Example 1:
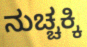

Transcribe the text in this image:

ನುಚ್ಚಕ್ಕಿ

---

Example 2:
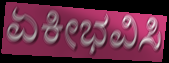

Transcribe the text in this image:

ಏಕೀಭವಿಸಿ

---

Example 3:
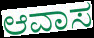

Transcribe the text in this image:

ಆವಾಸ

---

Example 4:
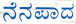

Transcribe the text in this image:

ನೆನಪಾದ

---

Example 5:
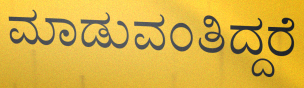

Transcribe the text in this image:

ಮಾಡುವಂತಿದ್ದರೆ